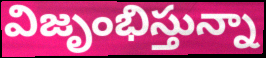
విజృంభిస్తున్నా